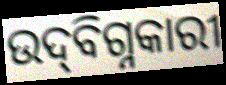
ଉଦ୍‌ବିଗ୍ନକାରୀ